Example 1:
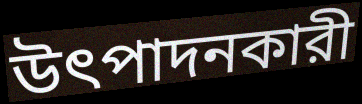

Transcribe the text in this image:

উৎপাদনকারী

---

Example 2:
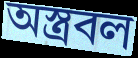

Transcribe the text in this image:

অস্ত্রবল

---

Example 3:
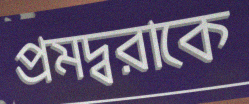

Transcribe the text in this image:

প্রমদ্বরাকে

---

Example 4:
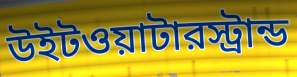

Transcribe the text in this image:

উইটওয়াটারস্ট্রান্ড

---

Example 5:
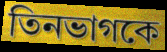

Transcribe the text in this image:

তিনভাগকে